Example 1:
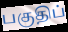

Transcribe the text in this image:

பகுதிப்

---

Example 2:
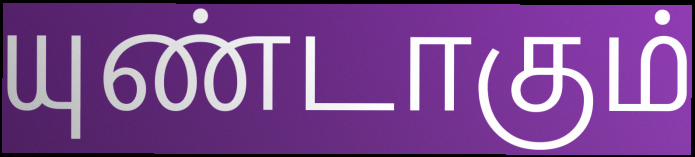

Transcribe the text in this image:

யுண்டாகும்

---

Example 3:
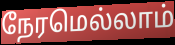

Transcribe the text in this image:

நேரமெல்லாம்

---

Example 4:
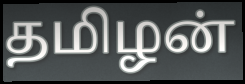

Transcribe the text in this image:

தமிழன்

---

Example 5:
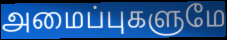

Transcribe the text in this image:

அமைப்புகளுமே